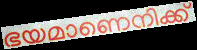
ഭയമാണെനിക്ക്